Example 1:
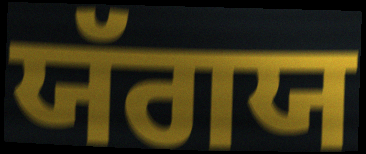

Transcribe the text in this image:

ਯੱਗਯ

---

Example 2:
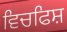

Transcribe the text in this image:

ਵਿਚਫਿਸ਼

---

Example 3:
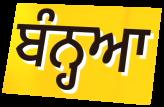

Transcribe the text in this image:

ਬੰਨ੍ਹਆ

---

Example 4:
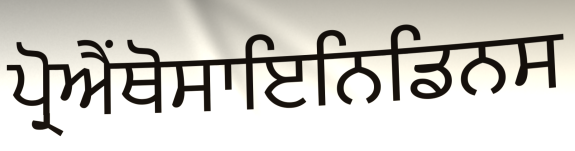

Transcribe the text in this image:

ਪ੍ਰੋਐਂਥੋਸਾਇਨਿਡਿਨਸ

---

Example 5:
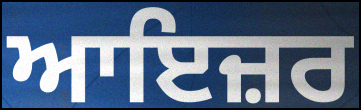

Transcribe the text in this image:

ਆਇਜ਼ਰ